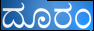
ದೂರಂ